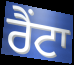
ਰੈਂਟਾ